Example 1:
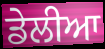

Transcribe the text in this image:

ਡੇਲੀਆ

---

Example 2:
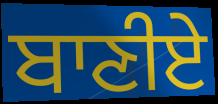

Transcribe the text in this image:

ਬਾਣੀਏ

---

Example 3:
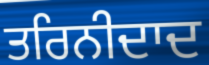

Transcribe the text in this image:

ਤਰਿਨੀਦਾਦ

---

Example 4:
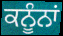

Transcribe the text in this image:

ਕਨੂੰਨਾਂ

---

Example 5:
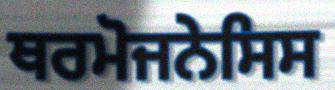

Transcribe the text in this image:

ਥਰਮੋਜਨੇਸਿਸ